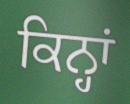
ਕਿਨ੍ਹਾਂ